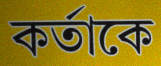
কর্তাকে